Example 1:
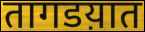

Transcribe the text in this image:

तागडय़ात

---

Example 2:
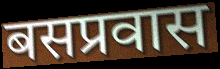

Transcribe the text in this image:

बसप्रवास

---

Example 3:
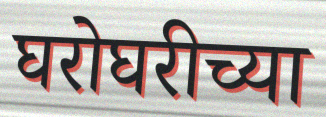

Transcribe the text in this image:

घरोघरीच्या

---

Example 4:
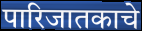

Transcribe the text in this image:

पारिजातकाचे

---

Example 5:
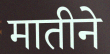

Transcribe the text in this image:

मातीने